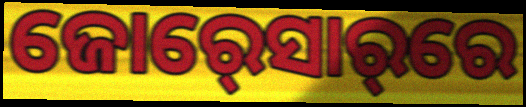
ଜୋର୍‍ସୋର୍‌ରେ